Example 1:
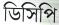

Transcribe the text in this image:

ডিসিপি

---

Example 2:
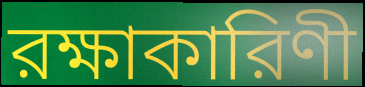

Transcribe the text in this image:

রক্ষাকারিণী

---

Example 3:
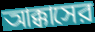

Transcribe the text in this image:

আক্কাসের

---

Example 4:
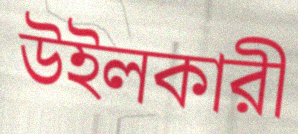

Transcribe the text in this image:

উইলকারী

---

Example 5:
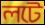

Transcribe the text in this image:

লটে